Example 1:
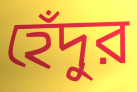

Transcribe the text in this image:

হেঁদুর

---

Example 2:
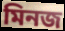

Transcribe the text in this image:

মিনজ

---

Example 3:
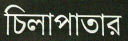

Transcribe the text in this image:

চিলাপাতার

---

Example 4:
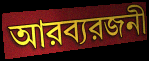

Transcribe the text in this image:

আরব্যরজনী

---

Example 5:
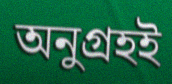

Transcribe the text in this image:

অনুগ্রহই